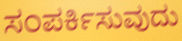
ಸಂಪರ್ಕಿಸುವುದು